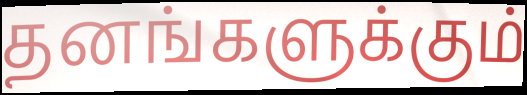
தனங்களுக்கும்